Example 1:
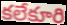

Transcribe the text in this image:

కలేకూరి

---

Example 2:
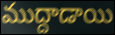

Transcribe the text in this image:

ముద్దాడాయి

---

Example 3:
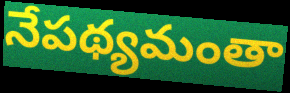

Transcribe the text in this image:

నేపథ్యమంతా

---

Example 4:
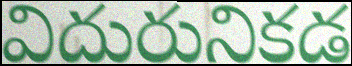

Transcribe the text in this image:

విదురునికడ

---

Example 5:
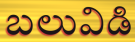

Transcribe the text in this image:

బలువిడి